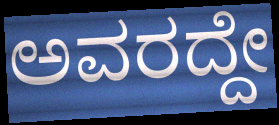
ಅವರದ್ದೇ